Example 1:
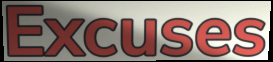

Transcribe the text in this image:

Excuses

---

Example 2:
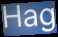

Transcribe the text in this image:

Hag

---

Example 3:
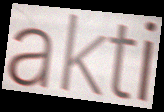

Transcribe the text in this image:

akti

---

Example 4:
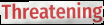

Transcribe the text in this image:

Threatening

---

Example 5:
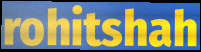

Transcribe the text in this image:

rohitshah